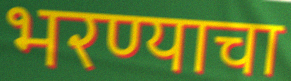
भरण्याचा